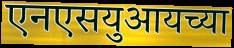
एनएसयुआयच्या